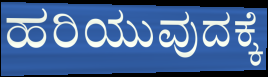
ಹರಿಯುವುದಕ್ಕೆ